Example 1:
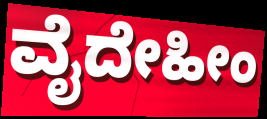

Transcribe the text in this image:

ವೈದೇಹೀಂ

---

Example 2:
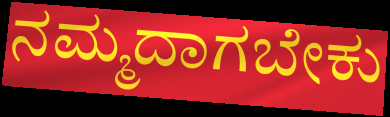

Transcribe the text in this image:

ನಮ್ಮದಾಗಬೇಕು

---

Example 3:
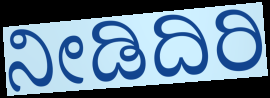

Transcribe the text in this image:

ನೀಡಿದಿರಿ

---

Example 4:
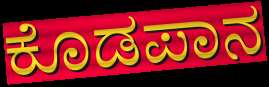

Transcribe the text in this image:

ಕೊಡಪಾನ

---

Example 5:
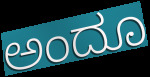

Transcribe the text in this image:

ಅಂದೂ